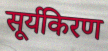
सूर्यकिरण